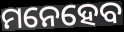
ମନେହେବ